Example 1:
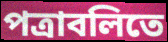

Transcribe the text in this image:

পত্রাবলিতে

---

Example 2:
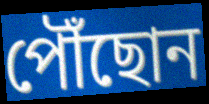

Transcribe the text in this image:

পৌঁছোন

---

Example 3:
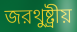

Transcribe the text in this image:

জরথুষ্ট্রীয়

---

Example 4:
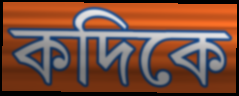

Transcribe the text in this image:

কদিকে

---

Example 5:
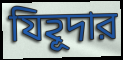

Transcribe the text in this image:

যিহূদার